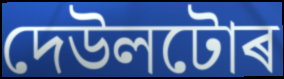
দেউলটোৰ